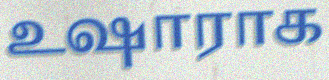
உஷாராக